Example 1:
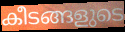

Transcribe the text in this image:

കീടങ്ങളുടെ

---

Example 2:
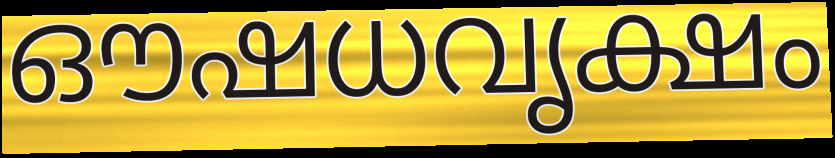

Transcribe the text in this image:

ഔഷധവൃക്ഷം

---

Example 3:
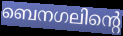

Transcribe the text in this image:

ബെനഗലിന്റെ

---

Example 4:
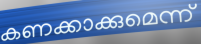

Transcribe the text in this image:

കണക്കാക്കുമെന്ന്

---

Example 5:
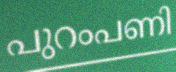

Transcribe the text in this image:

പുറംപണി